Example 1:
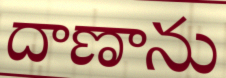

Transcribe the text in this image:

దాణాను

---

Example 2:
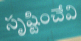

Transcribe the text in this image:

సృష్టించేవి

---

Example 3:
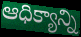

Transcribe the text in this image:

ఆధిక్యాన్ని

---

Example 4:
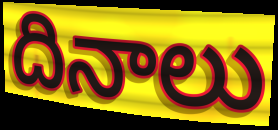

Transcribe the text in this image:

దినాలు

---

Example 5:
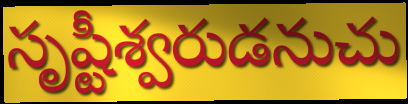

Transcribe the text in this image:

సృష్టీశ్వరుడనుచు